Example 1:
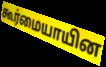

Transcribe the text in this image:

கூர்மையாயின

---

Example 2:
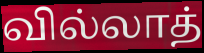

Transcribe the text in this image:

வில்லாத்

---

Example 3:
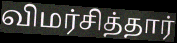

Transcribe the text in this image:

விமர்சித்தார்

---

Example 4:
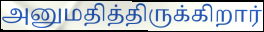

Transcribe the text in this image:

அனுமதித்திருக்கிறார்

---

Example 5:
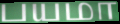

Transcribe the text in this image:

பயமா